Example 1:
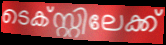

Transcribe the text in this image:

ടെക്സ്റ്റിലേക്ക്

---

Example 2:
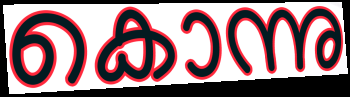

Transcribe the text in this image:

കൊന്നു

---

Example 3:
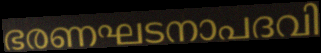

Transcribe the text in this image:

ഭരണഘടനാപദവി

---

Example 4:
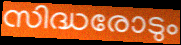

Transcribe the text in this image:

സിദ്ധരോടും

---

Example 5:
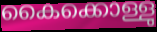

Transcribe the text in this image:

കൈക്കൊള്ളു